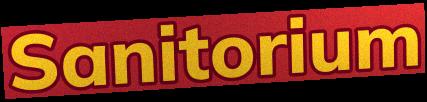
Sanitorium